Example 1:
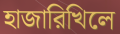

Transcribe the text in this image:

হাজারিখিলে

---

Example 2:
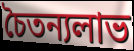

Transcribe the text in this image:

চৈতন্যলাভ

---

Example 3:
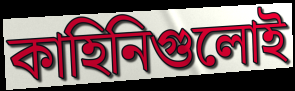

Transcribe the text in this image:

কাহিনিগুলোই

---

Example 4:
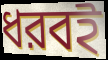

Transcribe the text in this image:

ধরবই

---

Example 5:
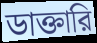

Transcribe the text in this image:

ডাক্তারি